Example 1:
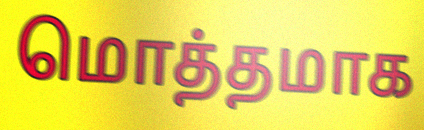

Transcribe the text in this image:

மொத்தமாக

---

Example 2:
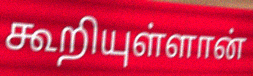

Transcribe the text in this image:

கூறியுள்ளான்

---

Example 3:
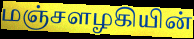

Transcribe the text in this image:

மஞ்சளழகியின்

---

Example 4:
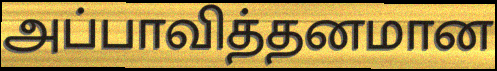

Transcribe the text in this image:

அப்பாவித்தனமான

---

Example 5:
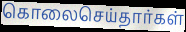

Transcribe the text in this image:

கொலைசெய்தார்கள்